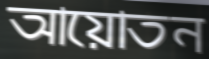
আয়োতন